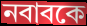
নবাবকে